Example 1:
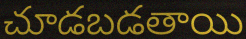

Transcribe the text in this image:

చూడబడతాయి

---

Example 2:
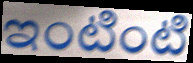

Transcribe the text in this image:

ఇంటింటి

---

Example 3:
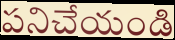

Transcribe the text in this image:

పనిచేయండి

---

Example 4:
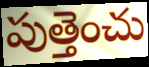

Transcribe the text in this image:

పుత్తెంచు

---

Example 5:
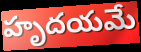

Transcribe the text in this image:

హృదయమే